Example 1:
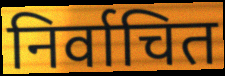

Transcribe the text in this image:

निर्वाचित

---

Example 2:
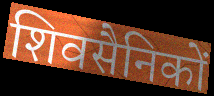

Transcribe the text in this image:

शिवसैनिकों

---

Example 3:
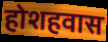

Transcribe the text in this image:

होशहवास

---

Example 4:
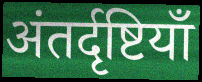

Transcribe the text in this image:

अंतर्दृष्टियाँ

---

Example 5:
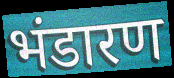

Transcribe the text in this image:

भंडारण